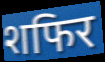
शफिर